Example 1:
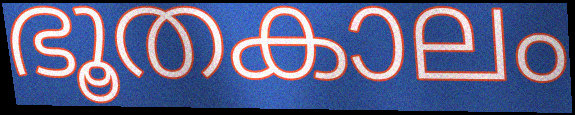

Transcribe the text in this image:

ഭൂതകാലം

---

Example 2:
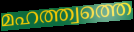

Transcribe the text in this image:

മഹത്ത്വത്തെ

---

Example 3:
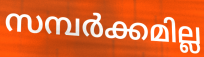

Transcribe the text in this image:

സമ്പർക്കമില്ല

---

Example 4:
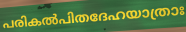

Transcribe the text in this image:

പരികൽപിതദേഹയാത്രാഃ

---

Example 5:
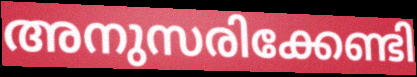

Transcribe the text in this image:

അനുസരിക്കേണ്ടി